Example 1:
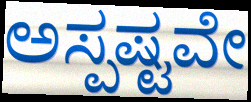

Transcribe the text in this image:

ಅಸ್ಪಷ್ಟವೇ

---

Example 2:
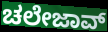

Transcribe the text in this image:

ಚಲೇಜಾವ್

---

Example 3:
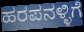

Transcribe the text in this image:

ಹರಪನಳ್ಳಿಗೆ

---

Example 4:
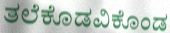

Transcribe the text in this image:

ತಲೆಕೊಡವಿಕೊಂಡ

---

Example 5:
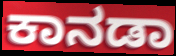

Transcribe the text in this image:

ಕಾನಡಾ